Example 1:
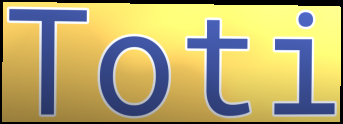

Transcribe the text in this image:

Toti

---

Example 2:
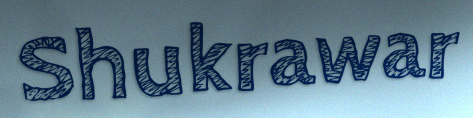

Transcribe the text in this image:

Shukrawar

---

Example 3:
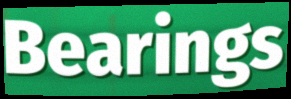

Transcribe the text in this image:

Bearings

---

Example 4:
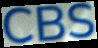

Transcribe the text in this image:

CBS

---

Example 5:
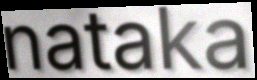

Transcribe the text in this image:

nataka